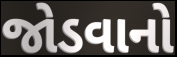
જોડવાનો